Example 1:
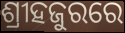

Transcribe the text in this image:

ଶ୍ରୀହଜୁରରେ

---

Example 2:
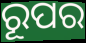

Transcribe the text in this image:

ରୂପର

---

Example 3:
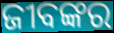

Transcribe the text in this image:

ଜୀବଙ୍କର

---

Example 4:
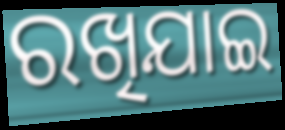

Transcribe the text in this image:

ରଖିଯାଇ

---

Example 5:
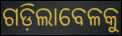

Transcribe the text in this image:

ଗଡ଼ିଲାବେଳକୁ